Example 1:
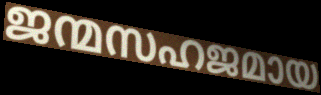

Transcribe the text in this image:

ജന്മസഹജമായ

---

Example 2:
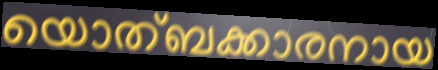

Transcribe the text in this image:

യൊത്ബക്കാരനായ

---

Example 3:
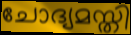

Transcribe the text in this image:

ചോദ്യമസ്തി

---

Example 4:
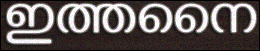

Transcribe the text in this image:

ഇത്തനൈ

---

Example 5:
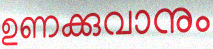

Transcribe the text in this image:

ഉണക്കുവാനും